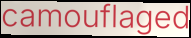
camouflaged